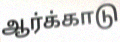
ஆர்க்காடு